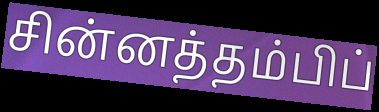
சின்னத்தம்பிப்